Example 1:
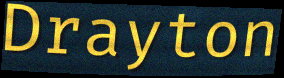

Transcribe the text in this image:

Drayton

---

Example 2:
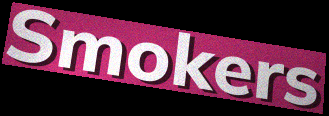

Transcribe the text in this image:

Smokers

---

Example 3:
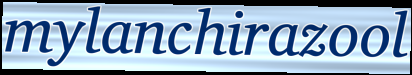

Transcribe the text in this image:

mylanchirazool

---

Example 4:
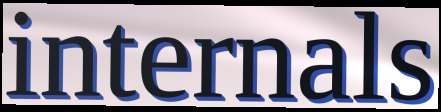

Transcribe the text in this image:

internals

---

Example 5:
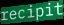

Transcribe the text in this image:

recipit